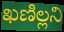
ఖణిల్లని